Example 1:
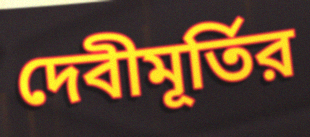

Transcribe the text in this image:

দেবীমূর্তির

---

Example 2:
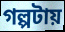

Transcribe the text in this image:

গল্পটায়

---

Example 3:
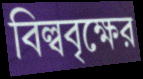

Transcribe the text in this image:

বিল্ববৃক্ষের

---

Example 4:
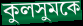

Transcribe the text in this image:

কুলসুমকে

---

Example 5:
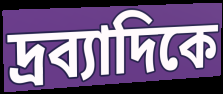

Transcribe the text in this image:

দ্রব্যাদিকে